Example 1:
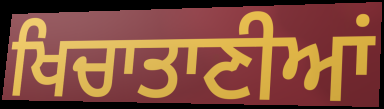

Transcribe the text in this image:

ਖਿਚਾਤਾਣੀਆਂ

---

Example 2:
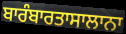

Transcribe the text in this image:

ਬਾਰੰਬਾਰਤਾਸਾਲਾਨਾ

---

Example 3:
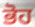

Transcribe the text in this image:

ਭੋਹ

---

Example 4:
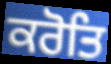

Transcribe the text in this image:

ਕਰੋਤਿ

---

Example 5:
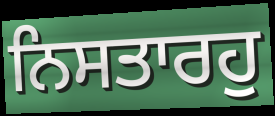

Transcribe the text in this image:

ਨਿਸਤਾਰਹੁ